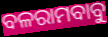
ବଳରାମବାବୁ